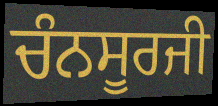
ਚੰਨਸੂਰਜੀ